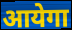
आयेगा